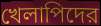
খেলাপিদের